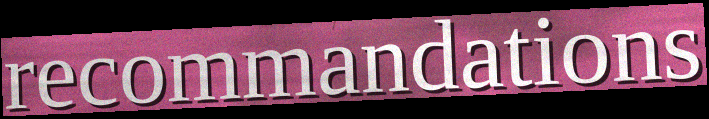
recommandations